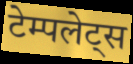
टेम्पलेट्स